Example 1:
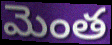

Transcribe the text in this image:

మెంత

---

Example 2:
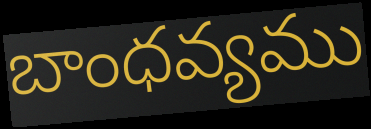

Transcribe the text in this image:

బాంధవ్యము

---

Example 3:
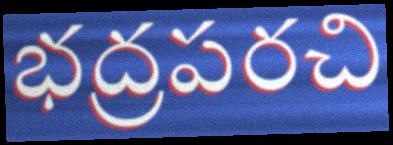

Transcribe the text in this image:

భద్రపరచి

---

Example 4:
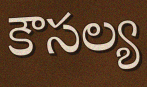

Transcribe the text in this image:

కౌసల్య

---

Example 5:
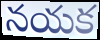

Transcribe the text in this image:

నయక